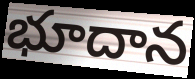
భూదాన